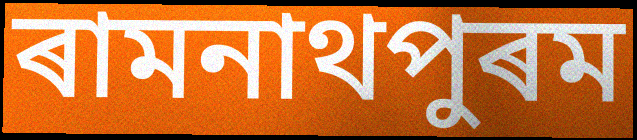
ৰামনাথপুৰম